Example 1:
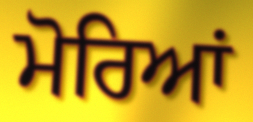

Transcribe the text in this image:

ਮੋਰਿਆਂ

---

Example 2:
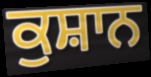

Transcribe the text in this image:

ਕੁਸ਼ਾਨ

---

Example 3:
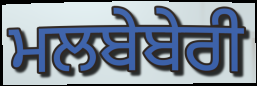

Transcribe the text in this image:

ਮਲਬੇਬੇਰੀ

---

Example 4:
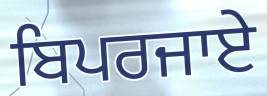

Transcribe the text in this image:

ਬਿਪਰਜਾਏ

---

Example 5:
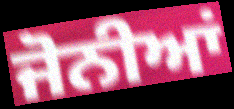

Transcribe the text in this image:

ਜੋਨੀਆਂ